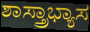
ಶಾಸ್ತ್ರಾಭ್ಯಾಸ